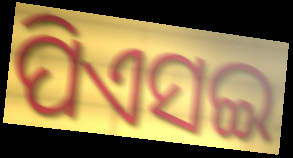
ପିଏସଇ